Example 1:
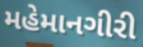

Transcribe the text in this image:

મહેમાનગીરી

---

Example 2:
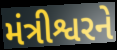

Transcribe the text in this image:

મંત્રીશ્વરને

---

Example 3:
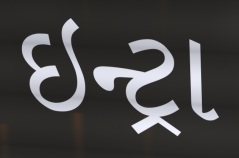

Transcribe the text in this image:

ઇન્ટ્રા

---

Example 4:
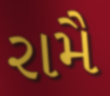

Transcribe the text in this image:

રામૈ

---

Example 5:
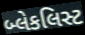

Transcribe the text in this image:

બ્લેકલિસ્ટ